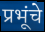
प्रभूंचे